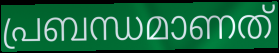
പ്രബന്ധമാണത്